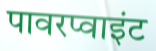
पावरप्वाइंट